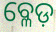
ବ୍ଳେଡ଼